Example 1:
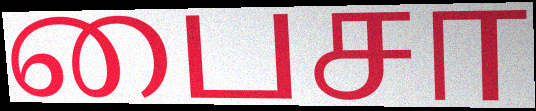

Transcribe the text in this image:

பைசா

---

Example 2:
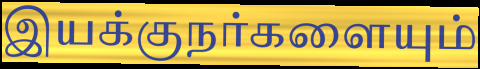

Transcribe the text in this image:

இயக்குநர்களையும்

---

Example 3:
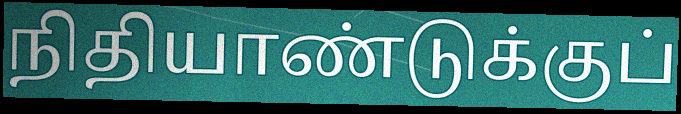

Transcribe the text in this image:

நிதியாண்டுக்குப்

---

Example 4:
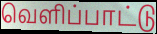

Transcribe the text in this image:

வெளிப்பாட்டு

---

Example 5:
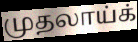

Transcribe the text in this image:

முதலாய்க்